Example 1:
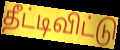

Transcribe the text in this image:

தீட்டிவிட்டு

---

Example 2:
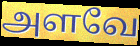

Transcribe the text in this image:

அளவே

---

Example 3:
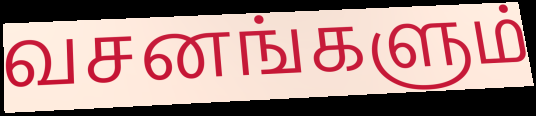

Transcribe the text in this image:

வசனங்களும்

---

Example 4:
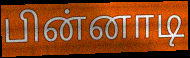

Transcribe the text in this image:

பின்னாடி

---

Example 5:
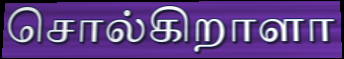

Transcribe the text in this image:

சொல்கிறாளா